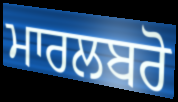
ਮਾਰਲਬਰੋ